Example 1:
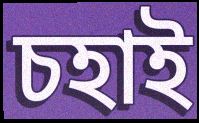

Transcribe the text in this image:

চহাই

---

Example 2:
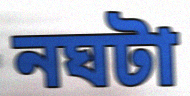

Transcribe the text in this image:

নঘটা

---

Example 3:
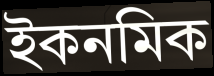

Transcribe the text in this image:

ইকনমিক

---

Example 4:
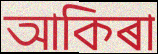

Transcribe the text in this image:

আকিৰা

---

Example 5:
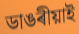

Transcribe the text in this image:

ডাঙৰীয়াই